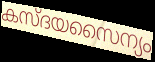
കസ്ദയസൈന്യം